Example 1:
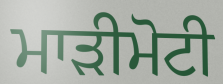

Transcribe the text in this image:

ਮਾੜੀਮੋਟੀ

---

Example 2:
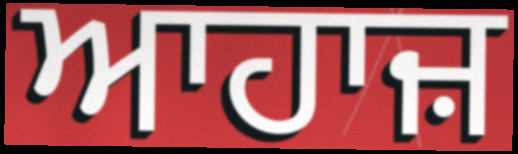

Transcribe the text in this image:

ਆਹਾਜ਼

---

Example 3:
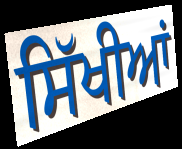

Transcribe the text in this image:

ਸਿੱਖੀਆਂ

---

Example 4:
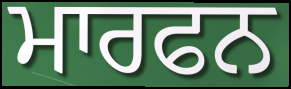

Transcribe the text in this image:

ਮਾਰਫਨ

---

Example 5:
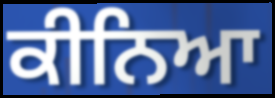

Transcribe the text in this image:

ਕੀਨਿਆ